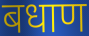
बधाण